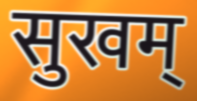
सुखम्